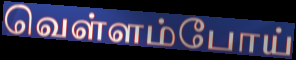
வெள்ளம்போய்